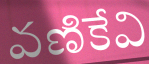
వణికేవి